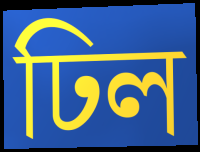
ঢিল